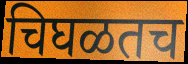
चिघळतच